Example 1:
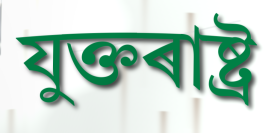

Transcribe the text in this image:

যুক্তৰাষ্ট্ৰ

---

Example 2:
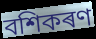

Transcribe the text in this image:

বশিকৰণ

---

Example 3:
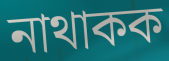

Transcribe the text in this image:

নাথাকক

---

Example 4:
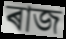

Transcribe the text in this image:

ৰাজ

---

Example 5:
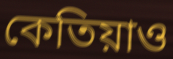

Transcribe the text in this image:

কেতিয়াও